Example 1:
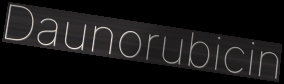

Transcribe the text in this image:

Daunorubicin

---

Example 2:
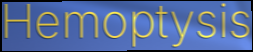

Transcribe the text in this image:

Hemoptysis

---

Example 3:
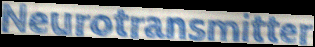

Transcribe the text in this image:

Neurotransmitter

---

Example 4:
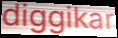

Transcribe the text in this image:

diggikar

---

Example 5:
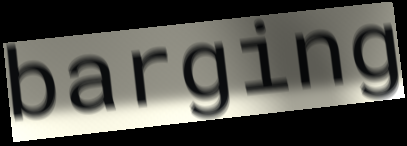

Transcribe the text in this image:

barging